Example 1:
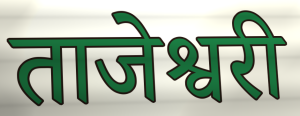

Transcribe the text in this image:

ताजेश्वरी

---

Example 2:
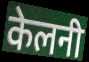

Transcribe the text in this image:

केलनी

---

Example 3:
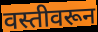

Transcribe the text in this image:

वस्तीवरून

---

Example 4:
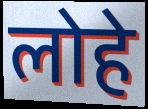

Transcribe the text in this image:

लोहे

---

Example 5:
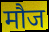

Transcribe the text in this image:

मौज